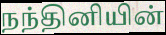
நந்தினியின்